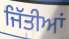
ਜਿੱਤੀਆਂ